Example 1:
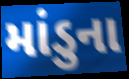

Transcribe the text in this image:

માંડુના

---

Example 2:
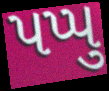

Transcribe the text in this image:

પપ્પુ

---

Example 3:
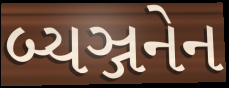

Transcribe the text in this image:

બ્યઞ્જનેન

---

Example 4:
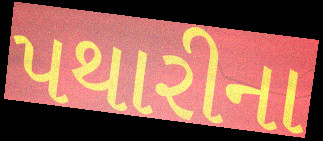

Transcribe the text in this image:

પથારીના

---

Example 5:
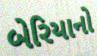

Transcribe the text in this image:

બેરિયાનો